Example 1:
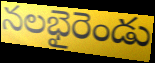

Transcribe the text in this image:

నలభైరెండు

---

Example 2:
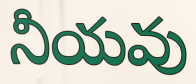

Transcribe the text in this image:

నీయవు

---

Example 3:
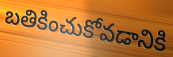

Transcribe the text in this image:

బతికించుకోవడానికి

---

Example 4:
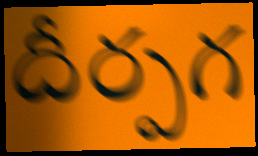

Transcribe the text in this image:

దీర్పగ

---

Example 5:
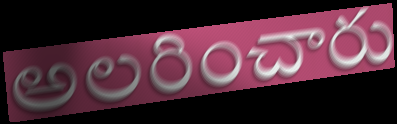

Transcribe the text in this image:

అలరించారు